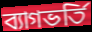
ব্যাগভর্তি